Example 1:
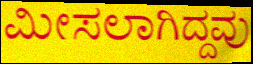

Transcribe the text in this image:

ಮೀಸಲಾಗಿದ್ದವು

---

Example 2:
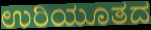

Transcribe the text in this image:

ಉರಿಯೂತದ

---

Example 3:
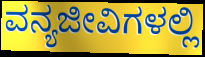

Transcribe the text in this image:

ವನ್ಯಜೀವಿಗಳಲ್ಲಿ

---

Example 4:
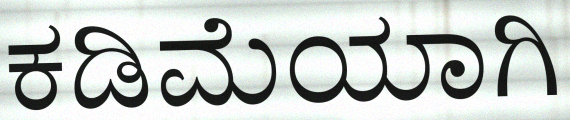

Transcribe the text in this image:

ಕಡಿಮೆಯಾಗಿ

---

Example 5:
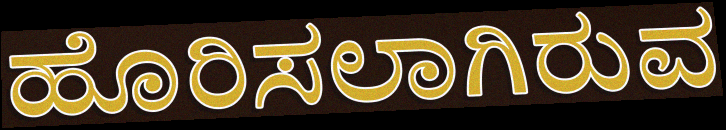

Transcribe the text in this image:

ಹೊರಿಸಲಾಗಿರುವ